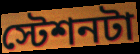
স্টেশনটা